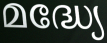
മദ്ധ്യേ